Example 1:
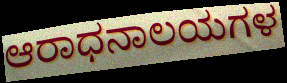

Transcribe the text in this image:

ಆರಾಧನಾಲಯಗಳ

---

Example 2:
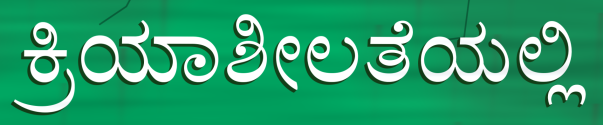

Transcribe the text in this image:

ಕ್ರಿಯಾಶೀಲತೆಯಲ್ಲಿ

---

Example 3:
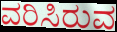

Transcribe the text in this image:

ವರಿಸಿರುವ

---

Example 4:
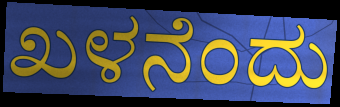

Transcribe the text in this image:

ಖಳನೆಂದು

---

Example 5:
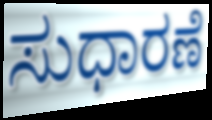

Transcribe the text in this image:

ಸುಧಾರಣೆ